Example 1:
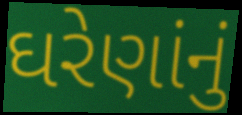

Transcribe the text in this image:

ઘરેણાંનું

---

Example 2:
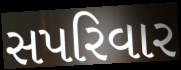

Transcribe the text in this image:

સપરિવાર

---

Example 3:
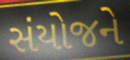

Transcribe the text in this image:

સંયોજને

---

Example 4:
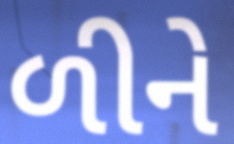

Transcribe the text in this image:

ળીને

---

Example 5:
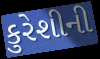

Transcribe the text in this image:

કુરેશીની